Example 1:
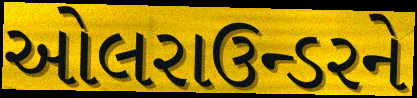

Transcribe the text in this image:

ઓલરાઉન્ડરને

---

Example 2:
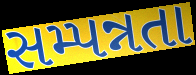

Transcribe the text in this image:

સમ્પન્નતા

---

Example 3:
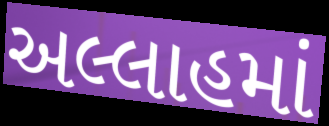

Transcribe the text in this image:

અલ્લાહમાં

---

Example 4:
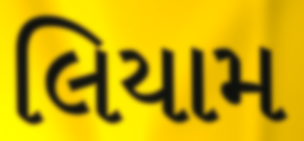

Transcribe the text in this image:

લિયામ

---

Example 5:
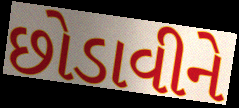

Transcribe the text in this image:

છોડાવીને